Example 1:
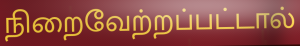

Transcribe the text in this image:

நிறைவேற்றப்பட்டால்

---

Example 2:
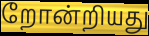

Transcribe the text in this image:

றோன்றியது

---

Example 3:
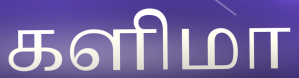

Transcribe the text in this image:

களிமா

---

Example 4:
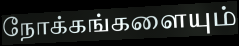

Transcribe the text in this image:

நோக்கங்களையும்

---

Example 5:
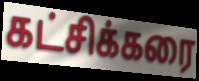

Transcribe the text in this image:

கட்சிக்கரை